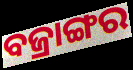
ବଜ୍ରାଙ୍ଗର